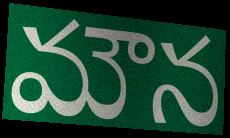
మౌన